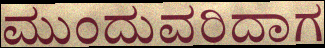
ಮುಂದುವರಿದಾಗ